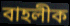
বাহলীক